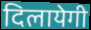
दिलायेगी